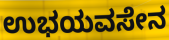
ಉಭಯವಸೇನ